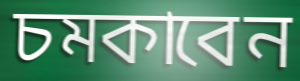
চমকাবেন